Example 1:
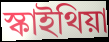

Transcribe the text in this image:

স্কাইথিয়া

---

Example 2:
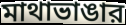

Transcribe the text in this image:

মাথাভাঙার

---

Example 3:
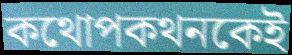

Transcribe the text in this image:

কথোপকথনকেই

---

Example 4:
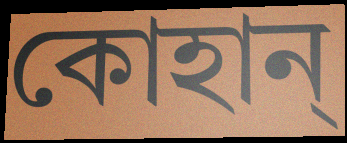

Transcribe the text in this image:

কোহান্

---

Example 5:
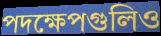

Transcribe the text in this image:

পদক্ষেপগুলিও